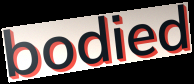
bodied